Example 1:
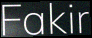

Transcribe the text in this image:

Fakir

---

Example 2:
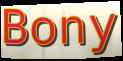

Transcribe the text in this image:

Bony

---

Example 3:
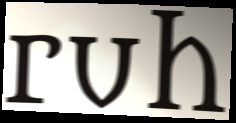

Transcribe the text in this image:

ruh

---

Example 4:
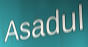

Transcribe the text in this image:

Asadul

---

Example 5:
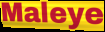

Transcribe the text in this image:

Maleye